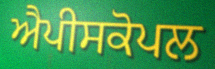
ਐਪੀਸਕੋਪਲ